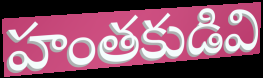
హంతకుడివి